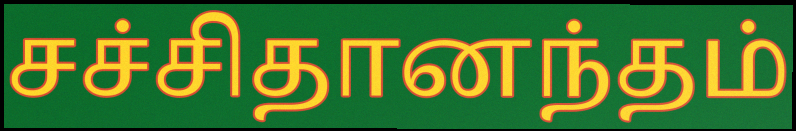
சச்சிதானந்தம்